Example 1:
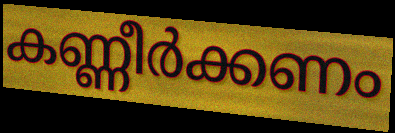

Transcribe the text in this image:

കണ്ണീർക്കണം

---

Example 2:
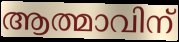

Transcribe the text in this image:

ആത്മാവിന്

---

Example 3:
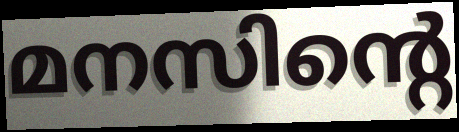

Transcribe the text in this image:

മനസിന്റെ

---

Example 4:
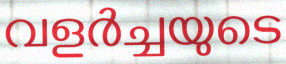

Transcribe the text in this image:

വളർച്ചയുടെ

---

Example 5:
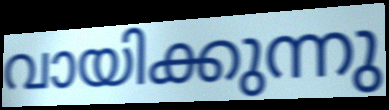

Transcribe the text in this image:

വായിക്കുന്നു